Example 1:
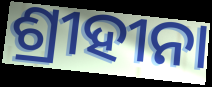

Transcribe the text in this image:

ଶ୍ରୀହୀନା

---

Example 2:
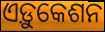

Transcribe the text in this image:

ଏଡ଼ୁକେଶନ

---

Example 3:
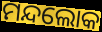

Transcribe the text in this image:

ମନ୍ଦଲୋକ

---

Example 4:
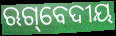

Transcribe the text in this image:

ଋଗ୍‌ବେଦୀୟ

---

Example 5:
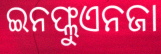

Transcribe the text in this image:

ଇନଫ୍ଲୁଏନଜା